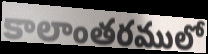
కాలాంతరములో